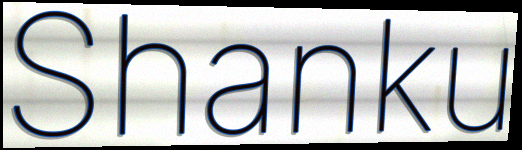
Shanku